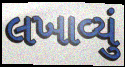
લખાવ્યું